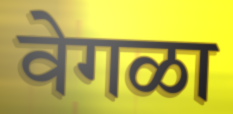
वेगळा